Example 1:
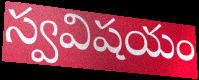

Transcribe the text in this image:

స్వవిషయం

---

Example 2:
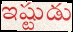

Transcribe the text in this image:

ఇష్టుడు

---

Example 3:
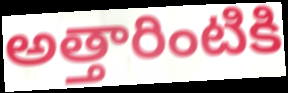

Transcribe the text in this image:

అత్తారింటికి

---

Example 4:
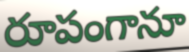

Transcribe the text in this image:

రూపంగానూ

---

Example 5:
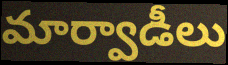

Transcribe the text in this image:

మార్వాడీలు